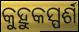
କୁହୁକସ୍ପର୍ଶ